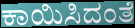
ಕಾಯಿಸಿದಂತೆ